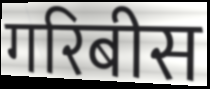
गरिबीस